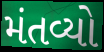
મંતવ્યો